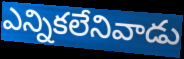
ఎన్నికలేనివాడు